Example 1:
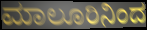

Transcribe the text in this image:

ಮಾಲೂರಿನಿಂದ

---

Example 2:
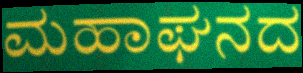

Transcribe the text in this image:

ಮಹಾಘನದ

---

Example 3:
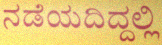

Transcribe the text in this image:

ನಡೆಯದಿದ್ದಲ್ಲಿ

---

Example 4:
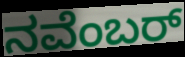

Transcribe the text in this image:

ನವೆಂಬರ್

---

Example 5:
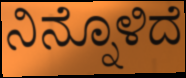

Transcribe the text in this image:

ನಿನ್ನೊಳಿದೆ